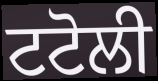
ਟਟੋਲੀ